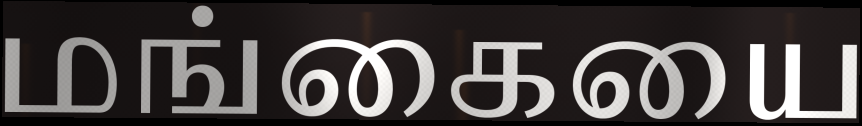
மங்கையை